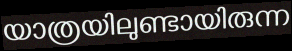
യാത്രയിലുണ്ടായിരുന്ന